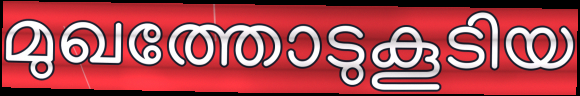
മുഖത്തോടുകൂടിയ